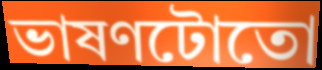
ভাষণটোতো